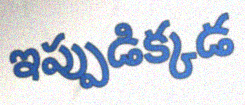
ఇప్పుడిక్కడ